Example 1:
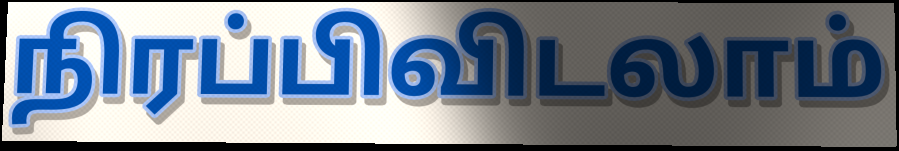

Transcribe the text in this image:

நிரப்பிவிடலாம்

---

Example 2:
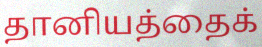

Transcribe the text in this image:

தானியத்தைக்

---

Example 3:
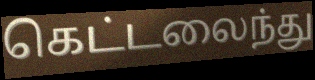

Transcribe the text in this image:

கெட்டலைந்து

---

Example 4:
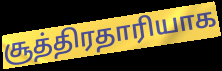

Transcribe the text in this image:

சூத்திரதாரியாக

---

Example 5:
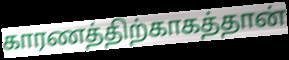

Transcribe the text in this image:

காரணத்திற்காகத்தான்